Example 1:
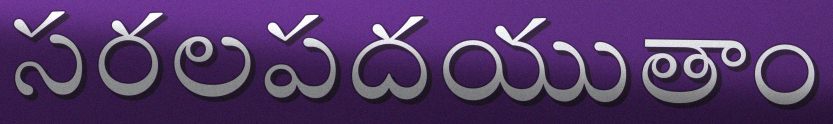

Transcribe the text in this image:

సరలపదయుతాం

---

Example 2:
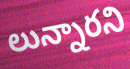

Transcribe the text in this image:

లున్నారని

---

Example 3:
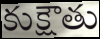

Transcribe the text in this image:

కుక్షౌతు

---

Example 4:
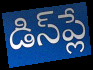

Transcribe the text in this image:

డిస్‌ప్లే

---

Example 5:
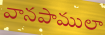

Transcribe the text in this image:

వానపాములా